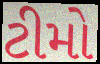
ટીમો